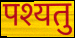
पश्यतु